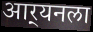
आर्यनला